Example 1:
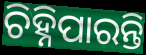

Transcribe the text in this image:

ଚିହ୍ନିପାରନ୍ତି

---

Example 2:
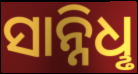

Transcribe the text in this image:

ସାନ୍ନିଧୢ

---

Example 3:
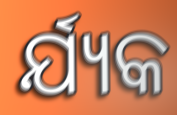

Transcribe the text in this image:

ର୍ଯ୍ୟକ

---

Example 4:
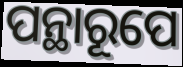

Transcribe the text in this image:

ପନ୍ଥାରୂପେ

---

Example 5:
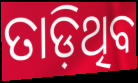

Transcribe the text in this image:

ତାଡ଼ିଥିବ